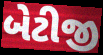
બેટીજી